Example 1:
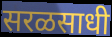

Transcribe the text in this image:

सरळसाधी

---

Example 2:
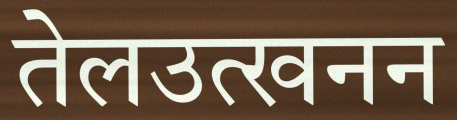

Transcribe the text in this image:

तेलउत्खनन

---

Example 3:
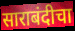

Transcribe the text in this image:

साराबंदीचा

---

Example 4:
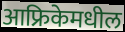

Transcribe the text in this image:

आफ्रिकेमधील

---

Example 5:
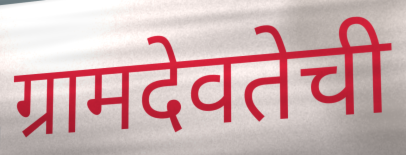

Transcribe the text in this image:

ग्रामदेवतेची